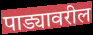
पाड्यावरील